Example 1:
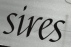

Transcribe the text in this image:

sires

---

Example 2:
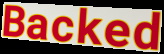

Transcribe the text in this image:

Backed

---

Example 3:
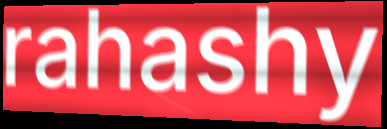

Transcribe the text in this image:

rahashy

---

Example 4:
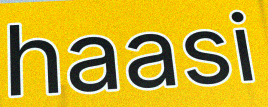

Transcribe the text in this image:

haasi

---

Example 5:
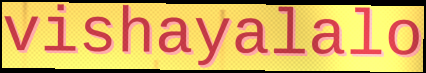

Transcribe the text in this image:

vishayalalo